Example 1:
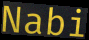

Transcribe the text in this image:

Nabi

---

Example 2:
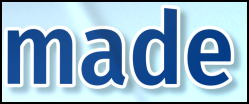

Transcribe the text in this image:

made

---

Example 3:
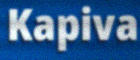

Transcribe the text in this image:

Kapiva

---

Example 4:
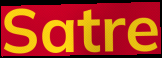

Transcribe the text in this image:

Satre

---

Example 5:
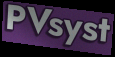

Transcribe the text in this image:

PVsyst